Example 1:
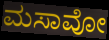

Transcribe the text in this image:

ಮಸಾವೋ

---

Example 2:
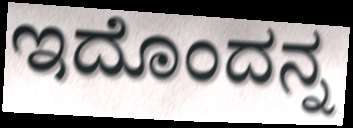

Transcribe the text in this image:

ಇದೊಂದನ್ನ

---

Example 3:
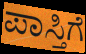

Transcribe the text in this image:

ಪಾಸ್ತಿಗೆ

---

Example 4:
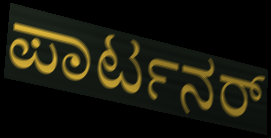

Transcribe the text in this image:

ಪಾರ್ಟನರ್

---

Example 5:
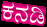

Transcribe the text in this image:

ಕನಡಿ